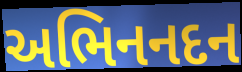
અભિનનદન